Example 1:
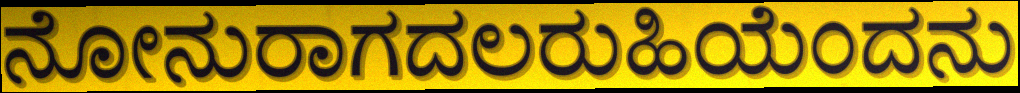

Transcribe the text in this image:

ನೋನುರಾಗದಲರುಹಿಯೆಂದನು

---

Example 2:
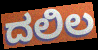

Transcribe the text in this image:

ದಲಿಲ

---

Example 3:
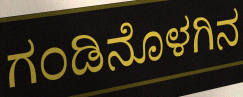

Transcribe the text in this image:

ಗಂಡಿನೊಳಗಿನ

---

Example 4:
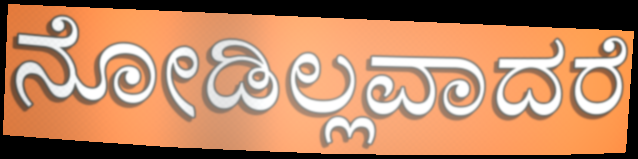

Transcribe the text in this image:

ನೋಡಿಲ್ಲವಾದರೆ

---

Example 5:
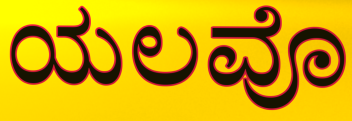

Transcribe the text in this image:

ಯಲವೊ